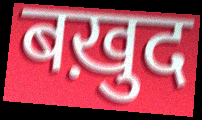
बख़ुद